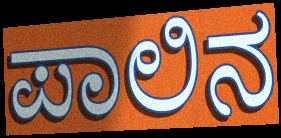
ಪಾಲಿನ